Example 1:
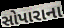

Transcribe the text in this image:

સોપારાના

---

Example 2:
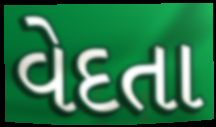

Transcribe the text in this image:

વેદતા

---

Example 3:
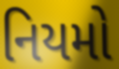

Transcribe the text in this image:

નિયમો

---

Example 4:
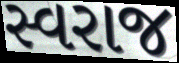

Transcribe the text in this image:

સ્વરાજ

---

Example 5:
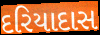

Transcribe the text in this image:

દરિયાદાસ